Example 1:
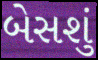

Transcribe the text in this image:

બેસશું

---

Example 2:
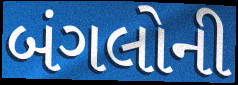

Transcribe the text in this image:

બંગલોની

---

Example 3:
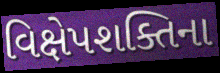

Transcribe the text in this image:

વિક્ષેપશક્તિના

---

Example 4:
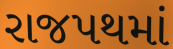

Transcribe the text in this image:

રાજપથમાં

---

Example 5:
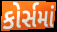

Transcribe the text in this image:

કોર્સમાં